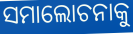
ସମାଲୋଚନାକୁ